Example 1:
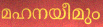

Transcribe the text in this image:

മഹനയീമും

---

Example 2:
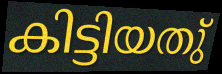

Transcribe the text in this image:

കിട്ടിയതു്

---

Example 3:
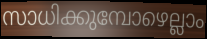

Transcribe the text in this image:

സാധിക്കുമ്പോഴെല്ലാം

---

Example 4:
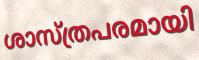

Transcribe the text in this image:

ശാസ്ത്രപരമായി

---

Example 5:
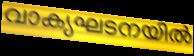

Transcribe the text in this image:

വാക്യഘടനയിൽ